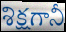
శిక్షగానీ